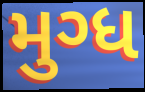
મુગ્ધ